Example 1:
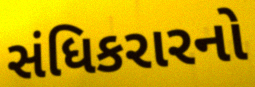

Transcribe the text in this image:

સંધિકરારનો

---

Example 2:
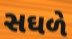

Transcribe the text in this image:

સઘળે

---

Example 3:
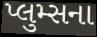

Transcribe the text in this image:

પ્લુમ્સના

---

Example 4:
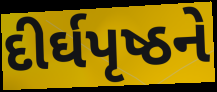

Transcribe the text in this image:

દીર્ઘપૃષ્ઠને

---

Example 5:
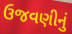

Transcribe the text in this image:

ઉજવણીનું